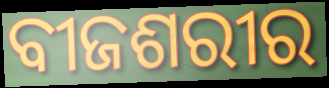
ବୀଜଶରୀର